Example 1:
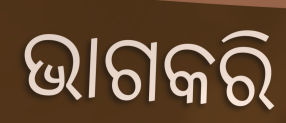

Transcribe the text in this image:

ଭାଗକରି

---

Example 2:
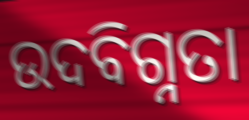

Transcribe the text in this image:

ଉଦବିଗ୍ନତା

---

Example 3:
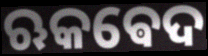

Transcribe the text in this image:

ଋକଵେଦ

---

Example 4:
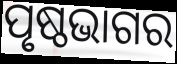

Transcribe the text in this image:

ପୃଷ୍ଠଭାଗର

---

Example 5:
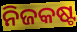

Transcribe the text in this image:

ନିଜକଷ୍ଟ